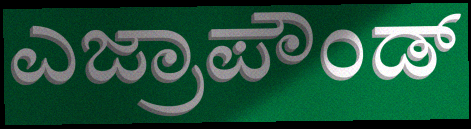
ಎಜ್ರಾಪೌಂಡ್